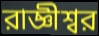
রাজ্ঞীশ্বর